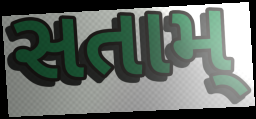
સતામ્